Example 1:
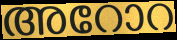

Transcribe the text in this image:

അറോറ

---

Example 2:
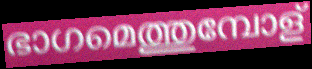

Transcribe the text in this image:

ഭാഗമെത്തുമ്പോള്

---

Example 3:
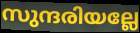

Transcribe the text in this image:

സുന്ദരിയല്ലേ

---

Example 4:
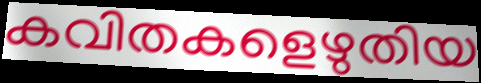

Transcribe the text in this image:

കവിതകളെഴുതിയ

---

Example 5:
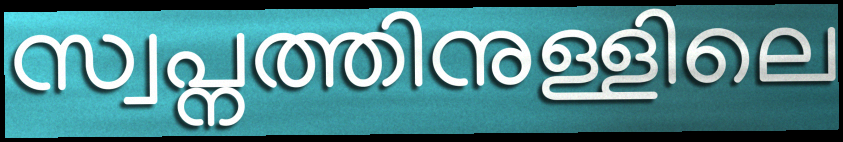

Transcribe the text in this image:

സ്വപ്നത്തിനുള്ളിലെ